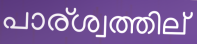
പാര്ശ്വത്തില്